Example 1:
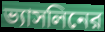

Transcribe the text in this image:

ভ্যাসলিনের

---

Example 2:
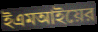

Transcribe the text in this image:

ইএমআইয়ের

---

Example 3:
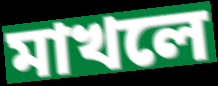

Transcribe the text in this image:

মাখলে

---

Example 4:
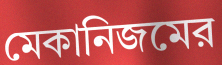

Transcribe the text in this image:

মেকানিজমের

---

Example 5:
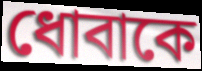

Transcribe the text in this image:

ধোবাকে